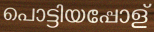
പൊട്ടിയപ്പോള്